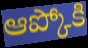
ఆప్కోకి